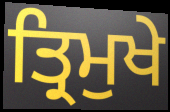
ਤ੍ਰਿਮੁਖੇ